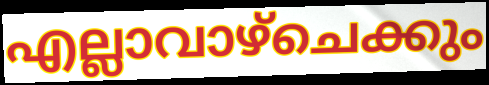
എല്ലാവാഴ്ചെക്കും